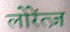
लोरेंत्ज़